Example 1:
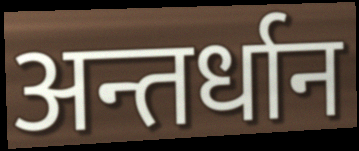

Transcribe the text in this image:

अन्तर्धान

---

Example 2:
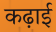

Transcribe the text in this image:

कढ़ाई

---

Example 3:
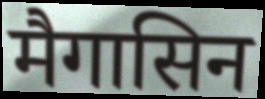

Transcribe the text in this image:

मैगासिन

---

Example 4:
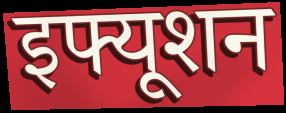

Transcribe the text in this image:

इफ्यूशन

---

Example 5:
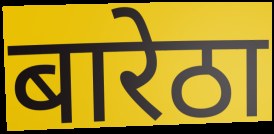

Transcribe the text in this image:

बारेठा